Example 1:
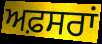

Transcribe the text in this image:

ਅਫ਼ਸਰਾਂ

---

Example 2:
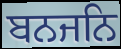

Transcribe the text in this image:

ਬਨਜਨਿ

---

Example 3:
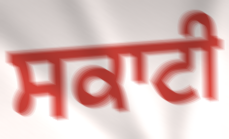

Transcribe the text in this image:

ਸਕਾਟੀ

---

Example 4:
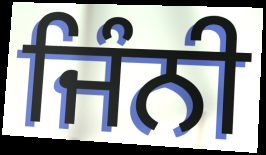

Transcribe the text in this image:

ਜਿੰਨੀ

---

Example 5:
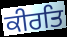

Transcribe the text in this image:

ਕੀਰਤਿ